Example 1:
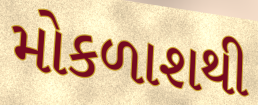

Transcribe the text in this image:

મોકળાશથી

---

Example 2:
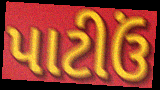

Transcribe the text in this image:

પાટીઉં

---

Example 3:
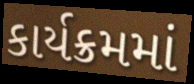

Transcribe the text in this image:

કાર્યક્રમમાં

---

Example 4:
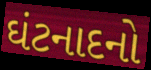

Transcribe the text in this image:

ઘંટનાદનો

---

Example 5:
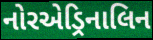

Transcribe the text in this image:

નોરએડ્રિનાલિન